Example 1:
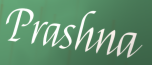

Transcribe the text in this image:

Prashna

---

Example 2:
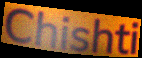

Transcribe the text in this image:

Chishti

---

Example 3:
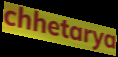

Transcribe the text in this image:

chhetarya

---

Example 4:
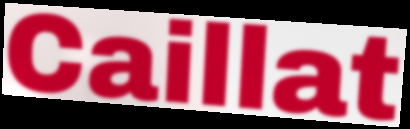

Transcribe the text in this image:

Caillat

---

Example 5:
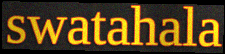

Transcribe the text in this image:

swatahala